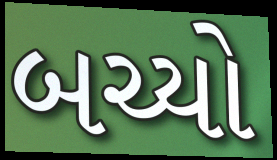
બચ્યો